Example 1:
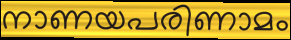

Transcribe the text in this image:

നാണയപരിണാമം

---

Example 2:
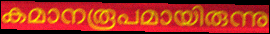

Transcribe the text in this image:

കമാനരൂപമായിരുന്നു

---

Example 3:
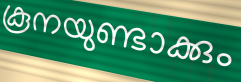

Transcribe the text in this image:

കൂനയുണ്ടാക്കും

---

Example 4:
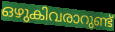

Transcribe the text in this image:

ഒഴുകിവരാറുണ്ട്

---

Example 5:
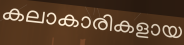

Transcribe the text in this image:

കലാകാരികളായ